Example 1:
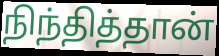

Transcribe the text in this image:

நிந்தித்தான்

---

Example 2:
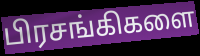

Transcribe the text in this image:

பிரசங்கிகளை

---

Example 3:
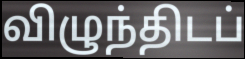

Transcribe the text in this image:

விழுந்திடப்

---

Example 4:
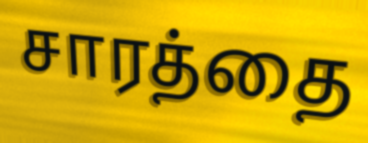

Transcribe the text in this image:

சாரத்தை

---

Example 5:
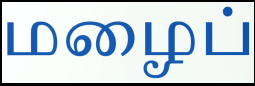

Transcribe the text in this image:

மழைப்